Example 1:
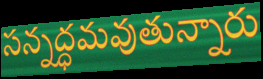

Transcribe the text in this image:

సన్నద్ధమవుతున్నారు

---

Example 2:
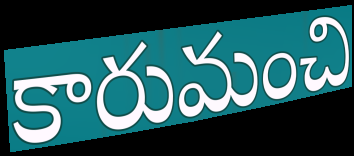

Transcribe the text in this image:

కారుమంచి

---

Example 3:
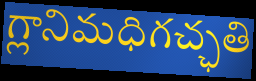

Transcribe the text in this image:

గ్లానిమధిగచ్ఛతి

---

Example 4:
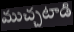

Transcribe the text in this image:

ముచ్చటాడి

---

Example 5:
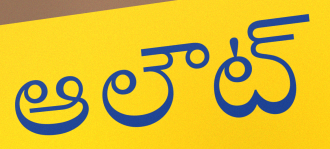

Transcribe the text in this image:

ఆలౌట్